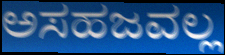
ಅಸಹಜವಲ್ಲ